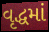
વૃદ્ધમાં